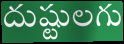
దుష్టులగు